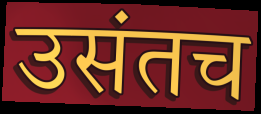
उसंतच